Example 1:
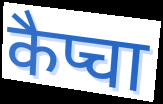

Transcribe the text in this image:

कैप्चा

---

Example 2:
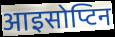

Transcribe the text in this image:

आइसोप्टिन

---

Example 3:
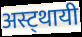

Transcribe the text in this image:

अस्ट्थायी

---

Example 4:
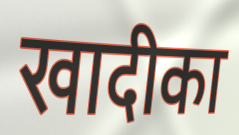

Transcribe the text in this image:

खादीका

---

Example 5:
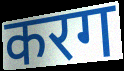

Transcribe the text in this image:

करग